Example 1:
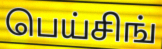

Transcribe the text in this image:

பெய்சிங்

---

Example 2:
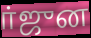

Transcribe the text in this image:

ர்ஜுன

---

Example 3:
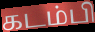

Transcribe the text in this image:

கடம்பி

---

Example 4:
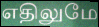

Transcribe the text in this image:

எதிலுமே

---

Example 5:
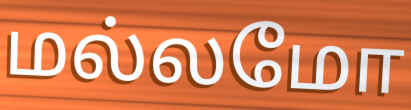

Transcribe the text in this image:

மல்லமோ